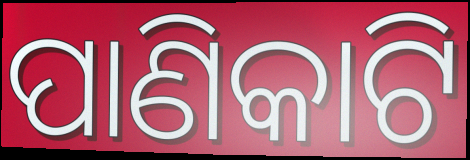
ପାଣିକାଟି